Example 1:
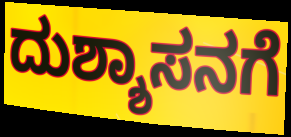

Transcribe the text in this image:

ದುಶ್ಶಾಸನಗೆ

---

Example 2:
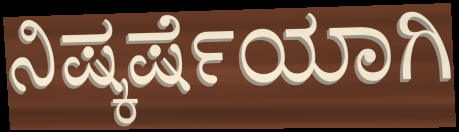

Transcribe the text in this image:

ನಿಷ್ಕರ್ಷೆಯಾಗಿ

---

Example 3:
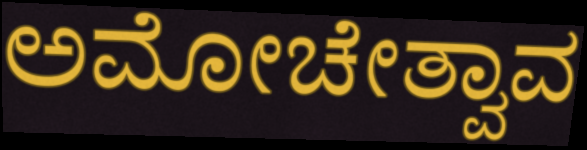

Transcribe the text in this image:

ಅಮೋಚೇತ್ವಾವ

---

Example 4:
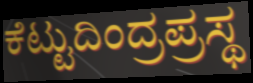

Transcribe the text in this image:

ಕೆಟ್ಟುದಿಂದ್ರಪ್ರಸ್ಥ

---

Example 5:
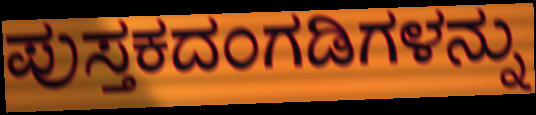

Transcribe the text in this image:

ಪುಸ್ತಕದಂಗಡಿಗಳನ್ನು